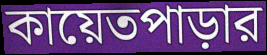
কায়েতপাড়ার